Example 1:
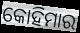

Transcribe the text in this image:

କୋହିମାର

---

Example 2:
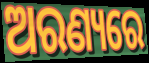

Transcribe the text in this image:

ଅରଣ୍ୟରେ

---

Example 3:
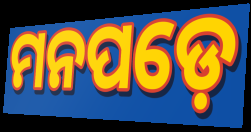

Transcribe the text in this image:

ମନପଡ଼େ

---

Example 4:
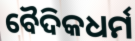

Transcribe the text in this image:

ବୈଦିକଧର୍ମ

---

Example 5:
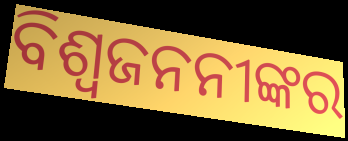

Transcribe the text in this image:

ବିଶ୍ୱଜନନୀଙ୍କର